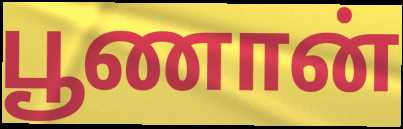
பூணான்